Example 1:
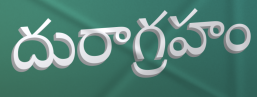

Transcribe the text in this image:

దురాగ్రహం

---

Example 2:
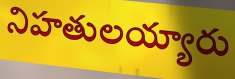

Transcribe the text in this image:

నిహతులయ్యారు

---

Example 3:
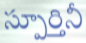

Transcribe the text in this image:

స్పూర్తినీ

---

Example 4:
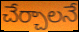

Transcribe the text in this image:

చేర్చాలనే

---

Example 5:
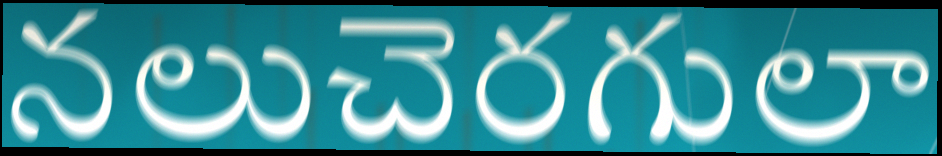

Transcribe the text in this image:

నలుచెరగులా